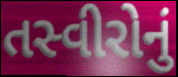
તસ્વીરોનું